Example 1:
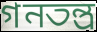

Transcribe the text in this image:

গনতন্ত্র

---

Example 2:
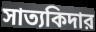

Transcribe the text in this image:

সাত্যকিদার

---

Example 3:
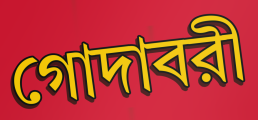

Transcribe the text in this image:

গোদাবরী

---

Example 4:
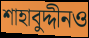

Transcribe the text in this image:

শাহাবুদ্দীনও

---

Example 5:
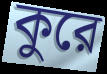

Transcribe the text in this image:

কুরে